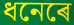
ধনেৰে